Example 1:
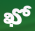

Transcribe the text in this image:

ఖో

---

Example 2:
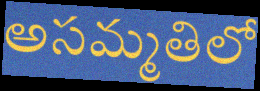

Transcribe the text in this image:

అసమ్మతిలో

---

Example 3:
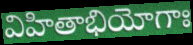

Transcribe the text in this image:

విహితాభియోగాః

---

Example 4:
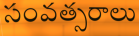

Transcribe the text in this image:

సంవత్సరాలు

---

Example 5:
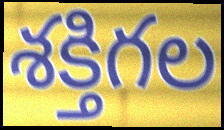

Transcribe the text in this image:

శక్తిగల